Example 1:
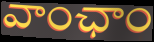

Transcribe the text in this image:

వాంఛాం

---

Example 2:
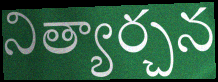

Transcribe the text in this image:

నిత్యార్చన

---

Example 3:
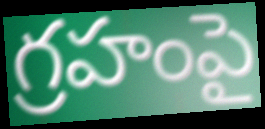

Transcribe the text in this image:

గ్రహంపై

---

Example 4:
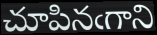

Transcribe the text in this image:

చూపినఁగాని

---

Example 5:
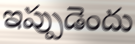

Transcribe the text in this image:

ఇప్పుడెందు